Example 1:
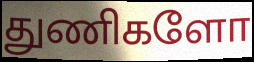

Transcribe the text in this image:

துணிகளோ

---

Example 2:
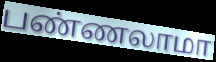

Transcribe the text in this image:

பண்ணலாமா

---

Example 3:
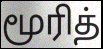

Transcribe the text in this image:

மூரித்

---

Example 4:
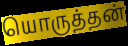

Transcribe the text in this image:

யொருத்தன்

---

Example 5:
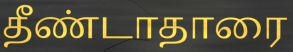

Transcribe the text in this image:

தீண்டாதாரை